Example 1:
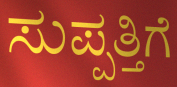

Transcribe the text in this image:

ಸುಪ್ಪತ್ತಿಗೆ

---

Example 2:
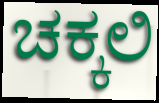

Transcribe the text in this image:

ಚಕ್ಕಲಿ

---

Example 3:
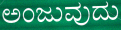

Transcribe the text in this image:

ಅಂಜುವುದು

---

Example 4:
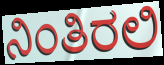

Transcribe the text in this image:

ನಿಂತಿರಲಿ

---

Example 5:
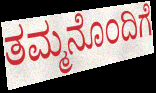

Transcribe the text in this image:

ತಮ್ಮನೊಂದಿಗೆ